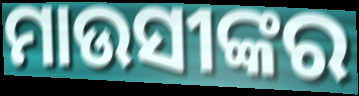
ମାଉସୀଙ୍କର